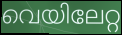
വെയിലേറ്റ